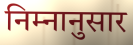
निम्‍नानुसार